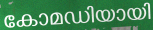
കോമഡിയായി